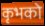
कृभको